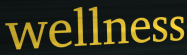
wellness